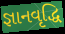
જ્ઞાનવૃદ્ધિ